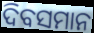
ଦିବସମାନ